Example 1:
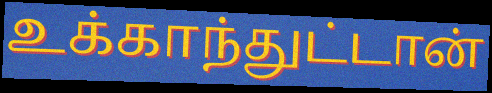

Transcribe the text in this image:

உக்காந்துட்டான்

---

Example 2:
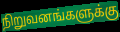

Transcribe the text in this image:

நிறுவனங்களுக்கு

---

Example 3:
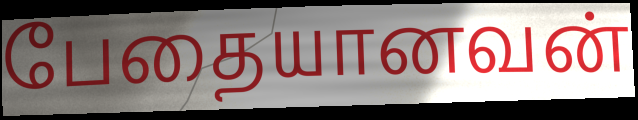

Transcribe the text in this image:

பேதையானவன்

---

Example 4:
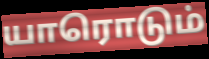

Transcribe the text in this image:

யாரொடும்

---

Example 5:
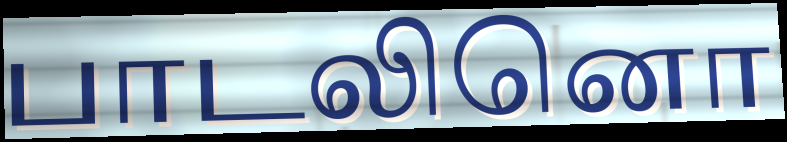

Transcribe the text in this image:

பாடலினொ